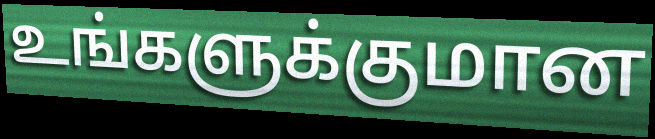
உங்களுக்குமான